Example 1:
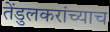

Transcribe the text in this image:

तेंडुलकरांच्याच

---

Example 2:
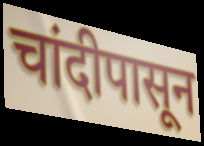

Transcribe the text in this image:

चांदीपासून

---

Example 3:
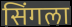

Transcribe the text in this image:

सिंगला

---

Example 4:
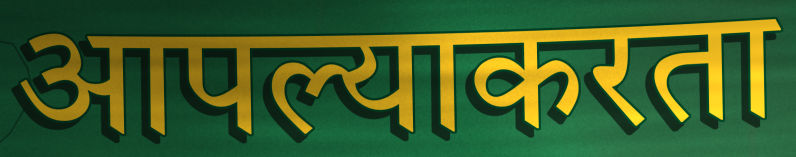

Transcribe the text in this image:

आपल्याकरता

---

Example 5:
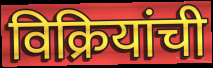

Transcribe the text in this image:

विक्रियांची